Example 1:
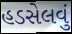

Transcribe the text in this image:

હડસેલવું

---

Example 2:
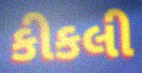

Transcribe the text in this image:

કીકલી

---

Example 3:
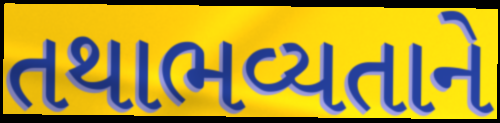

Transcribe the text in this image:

તથાભવ્યતાને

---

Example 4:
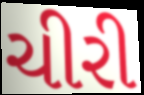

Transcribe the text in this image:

ચીરી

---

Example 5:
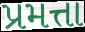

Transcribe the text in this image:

પ્રમત્તા